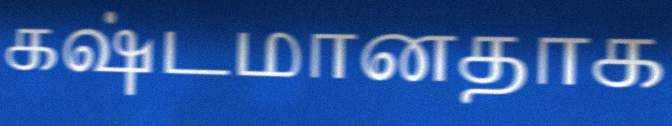
கஷ்டமானதாக